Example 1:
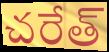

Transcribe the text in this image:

చరేత్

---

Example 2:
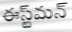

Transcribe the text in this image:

ఈస్ట్‌మన్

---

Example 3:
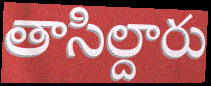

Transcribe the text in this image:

తాసిల్దారు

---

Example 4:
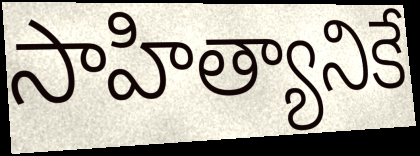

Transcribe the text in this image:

సాహిత్యానికే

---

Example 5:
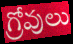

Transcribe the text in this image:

గ్రోవులు